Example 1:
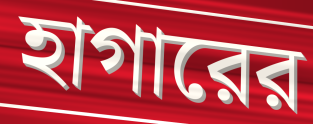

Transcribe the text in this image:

হাগারের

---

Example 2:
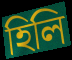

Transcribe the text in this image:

হিলি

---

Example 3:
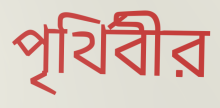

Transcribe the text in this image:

পৃর্থিবীর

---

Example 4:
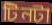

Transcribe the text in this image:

টিনটা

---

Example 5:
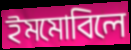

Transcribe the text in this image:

ইমমোবিলে